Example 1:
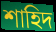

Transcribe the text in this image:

শাহিদ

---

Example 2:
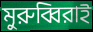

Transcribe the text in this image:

মুরুব্বিরাই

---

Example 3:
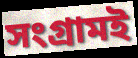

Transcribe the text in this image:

সংগ্রামই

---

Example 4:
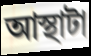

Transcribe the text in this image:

আস্থাটা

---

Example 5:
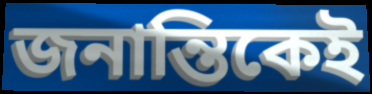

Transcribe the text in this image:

জনান্তিকেই